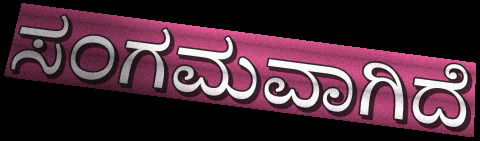
ಸಂಗಮವಾಗಿದೆ